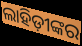
ଲାହିଡ଼ୀଙ୍କର